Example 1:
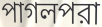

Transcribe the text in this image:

পাগলপরা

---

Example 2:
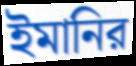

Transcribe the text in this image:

ইমানির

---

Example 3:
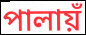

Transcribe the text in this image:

পালায়ঁ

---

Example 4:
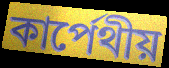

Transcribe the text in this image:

কার্পেথীয়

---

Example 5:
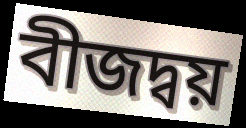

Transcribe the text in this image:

বীজদ্বয়